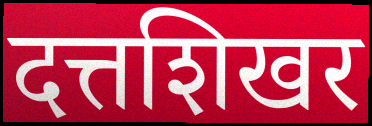
दत्तशिखर